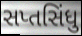
સપ્તસિંધુ